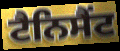
ਟੈਨਿਸੈਂਟ